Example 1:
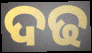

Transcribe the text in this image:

ଦଢ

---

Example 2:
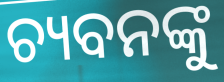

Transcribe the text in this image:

ଚ୍ୟବନଙ୍କୁ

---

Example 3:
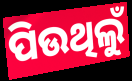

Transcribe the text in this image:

ପିଉଥିଲୁଁ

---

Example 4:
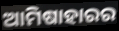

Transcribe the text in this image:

ଆମିଷାହାରର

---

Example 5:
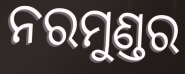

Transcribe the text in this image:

ନରମୁଣ୍ଡର